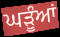
ਘੜੂੰਆਂ